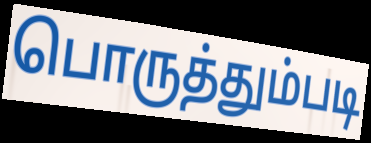
பொருத்தும்படி